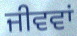
ਜੀਵਵਾਂ